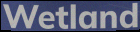
Wetland